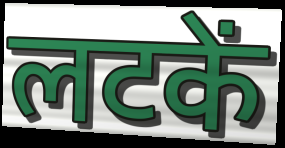
लटकें